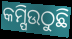
କମ୍ପିଉଠୁଛି